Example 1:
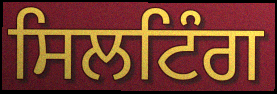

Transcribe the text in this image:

ਸਿਲਟਿੰਗ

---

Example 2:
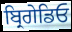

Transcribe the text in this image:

ਬ੍ਰਿਗੇਡਿਓ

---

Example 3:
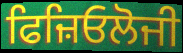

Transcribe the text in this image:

ਫਿਜ਼ਿਓਲੋਜੀ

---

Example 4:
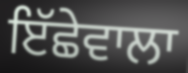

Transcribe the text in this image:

ਇੱਛੇਵਾਲਾ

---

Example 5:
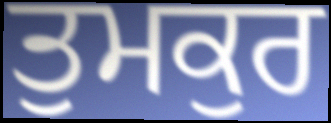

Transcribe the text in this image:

ਤੁਮਕੁਰ